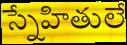
స్నేహితులే